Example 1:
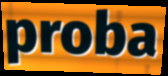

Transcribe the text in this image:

proba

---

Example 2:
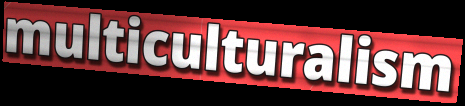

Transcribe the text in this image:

multiculturalism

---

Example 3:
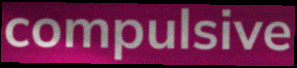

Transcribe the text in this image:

compulsive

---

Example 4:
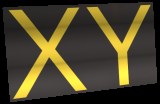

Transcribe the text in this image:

XY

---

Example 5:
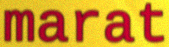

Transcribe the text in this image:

marat